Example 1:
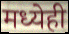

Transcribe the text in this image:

मध्येही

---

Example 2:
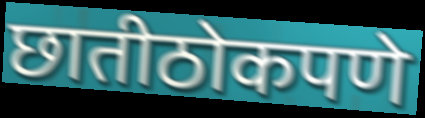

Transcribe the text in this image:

छातीठोकपणे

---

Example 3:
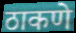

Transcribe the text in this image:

ठाकणे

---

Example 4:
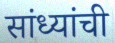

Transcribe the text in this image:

सांध्यांची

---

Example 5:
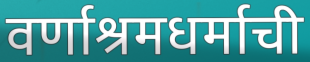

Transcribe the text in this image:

वर्णाश्रमधर्माची